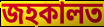
জহকালত